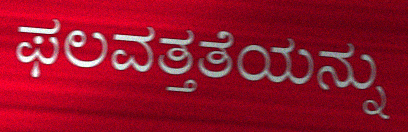
ಫಲವತ್ತತೆಯನ್ನು